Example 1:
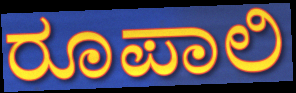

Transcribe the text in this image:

ರೂಪಾಲಿ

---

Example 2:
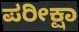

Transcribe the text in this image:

ಪರೀಕ್ಷಾ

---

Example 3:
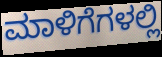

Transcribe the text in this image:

ಮಾಳಿಗೆಗಳಲ್ಲಿ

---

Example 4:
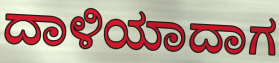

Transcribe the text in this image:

ದಾಳಿಯಾದಾಗ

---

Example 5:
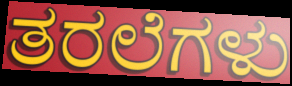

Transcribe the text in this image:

ತರಲೆಗಳು